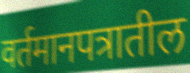
वर्तमानपत्रातील